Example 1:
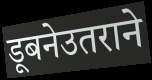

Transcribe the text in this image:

डूबनेउतराने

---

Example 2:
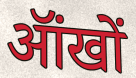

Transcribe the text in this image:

ऑंखों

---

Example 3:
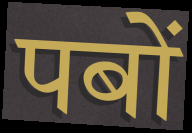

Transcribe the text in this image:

पबों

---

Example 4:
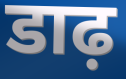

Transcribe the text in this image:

डाढ़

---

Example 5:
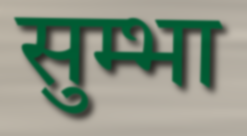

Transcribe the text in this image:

सुम्भा